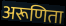
अरूणिता